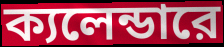
ক্যলেন্ডারে